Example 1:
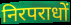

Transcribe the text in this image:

निरपराधों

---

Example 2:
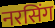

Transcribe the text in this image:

नरसिंग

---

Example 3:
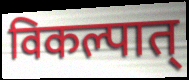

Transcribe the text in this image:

विकल्पात्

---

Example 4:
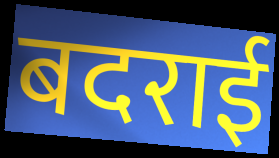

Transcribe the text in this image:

बदराई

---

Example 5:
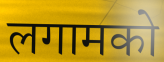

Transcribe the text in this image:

लगामको